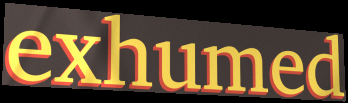
exhumed